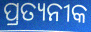
ପ୍ରତ୍ୟନୀକ